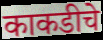
काकडीचे